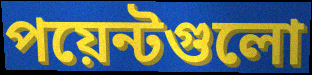
পয়েন্টগুলো